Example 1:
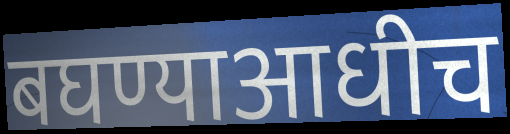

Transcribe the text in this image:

बघण्याआधीच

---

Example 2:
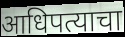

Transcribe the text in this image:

आधिपत्याचा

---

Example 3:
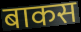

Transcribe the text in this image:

बाकस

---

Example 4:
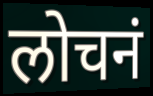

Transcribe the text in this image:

लोचनं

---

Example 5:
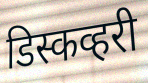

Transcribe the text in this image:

डिस्कव्हरी